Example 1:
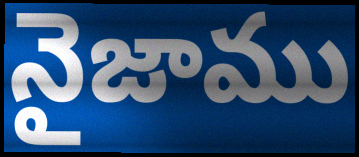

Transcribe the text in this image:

నైజాము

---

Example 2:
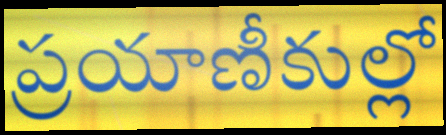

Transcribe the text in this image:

ప్రయాణీకుల్లో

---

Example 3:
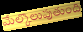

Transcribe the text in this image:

మేల్కొలుపుతుంది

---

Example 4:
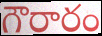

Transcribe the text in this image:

గౌరారం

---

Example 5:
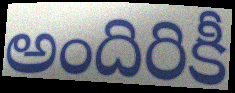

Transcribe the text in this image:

అందిరికీ